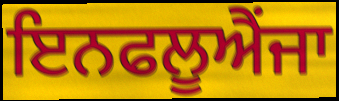
ਇਨਫਲੂਐਂਜਾ